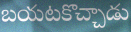
బయటకొచ్చాడు